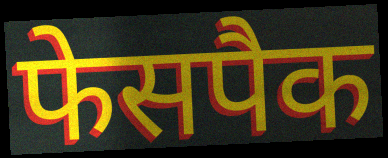
फेसपैक